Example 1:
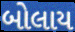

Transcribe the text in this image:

બોલાય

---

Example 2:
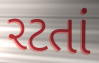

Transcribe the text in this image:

રટતાં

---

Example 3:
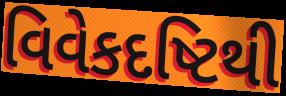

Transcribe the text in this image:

વિવેકદષ્ટિથી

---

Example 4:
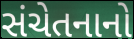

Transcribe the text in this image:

સંચેતનાનો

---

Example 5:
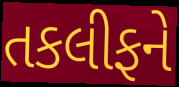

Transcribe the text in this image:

તકલીફને